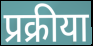
प्रक्रीया